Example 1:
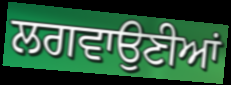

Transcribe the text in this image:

ਲਗਵਾਉਣੀਆਂ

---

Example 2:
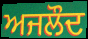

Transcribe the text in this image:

ਅਜਲੌਦ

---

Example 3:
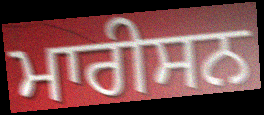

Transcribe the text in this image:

ਮਾਰੀਸਨ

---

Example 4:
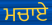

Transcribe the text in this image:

ਮਚਾਏ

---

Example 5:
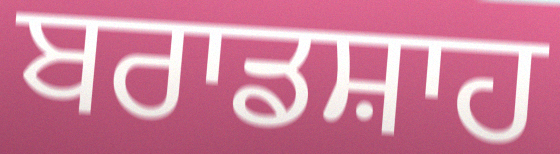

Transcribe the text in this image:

ਬਰਾਡਸ਼ਾਹ